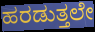
ಹರಡುತ್ತಲೇ